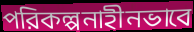
পরিকল্পনাহীনভাবে